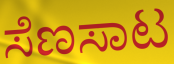
ಸೆಣಸಾಟ